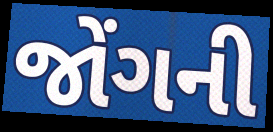
જોંગની